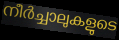
നീർച്ചാലുകളുടെ